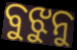
ବୁଝୁନୁ